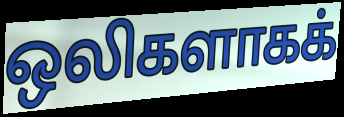
ஒலிகளாகக்